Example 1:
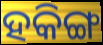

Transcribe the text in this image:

ହକିଙ୍ଗ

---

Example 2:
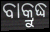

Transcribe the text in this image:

ବାକ୍ରୁଦ୍ଧ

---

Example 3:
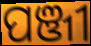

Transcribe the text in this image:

ପଞ୍ଜୀ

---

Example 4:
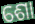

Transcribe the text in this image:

ଶୋ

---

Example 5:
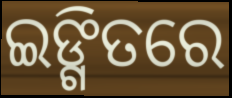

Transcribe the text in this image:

ଇଙ୍ଗିତରେ